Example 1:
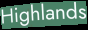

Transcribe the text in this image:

Highlands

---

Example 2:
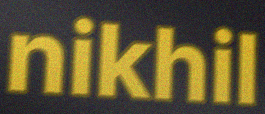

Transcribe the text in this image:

nikhil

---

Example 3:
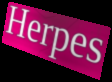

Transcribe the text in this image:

Herpes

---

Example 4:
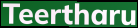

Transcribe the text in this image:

Teertharu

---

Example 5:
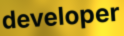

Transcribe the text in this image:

developer